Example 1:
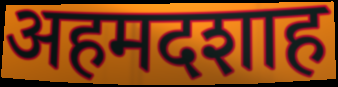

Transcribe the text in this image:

अहमदशाह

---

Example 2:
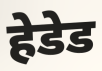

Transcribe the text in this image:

हेडेड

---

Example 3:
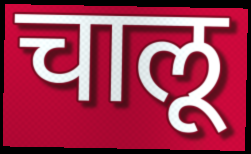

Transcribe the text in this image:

चालू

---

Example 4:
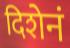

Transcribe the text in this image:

दिशेनं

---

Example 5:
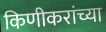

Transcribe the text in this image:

किणीकरांच्या